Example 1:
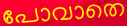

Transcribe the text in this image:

പോവാതെ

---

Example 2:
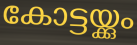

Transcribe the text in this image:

കോട്ടയ്ക്കും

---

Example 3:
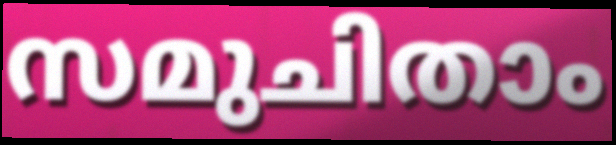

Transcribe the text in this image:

സമുചിതാം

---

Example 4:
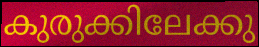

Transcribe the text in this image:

കുരുക്കിലേക്കു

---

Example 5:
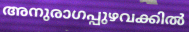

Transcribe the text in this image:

അനുരാഗപ്പുഴവക്കിൽ